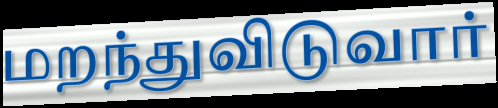
மறந்துவிடுவார்